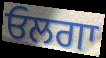
ਓਲਗਾ